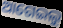
ଆଗେଇଲୁ